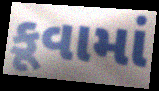
કૂવામાં